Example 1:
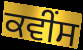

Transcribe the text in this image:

ਕਵੀਂਸ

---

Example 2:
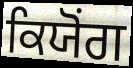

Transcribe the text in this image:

ਕਿਯੋਂਗ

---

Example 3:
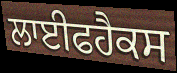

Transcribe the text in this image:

ਲਾਈਫਹੈਕਸ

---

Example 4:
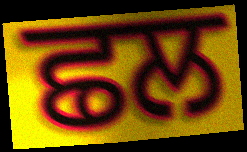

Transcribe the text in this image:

ਛਲ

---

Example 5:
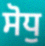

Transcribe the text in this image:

ਸੋਧੁ